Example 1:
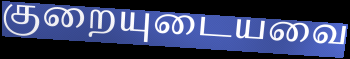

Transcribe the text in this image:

குறையுடையவை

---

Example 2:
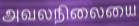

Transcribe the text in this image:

அவலநிலையை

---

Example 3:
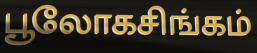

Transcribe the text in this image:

பூலோகசிங்கம்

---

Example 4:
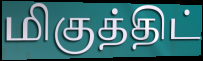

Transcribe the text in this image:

மிகுத்திட்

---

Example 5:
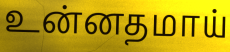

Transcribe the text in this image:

உன்னதமாய்